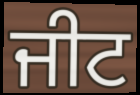
ਜੀਟ